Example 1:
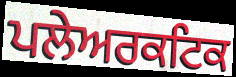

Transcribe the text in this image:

ਪਲੇਅਰਕਟਿਕ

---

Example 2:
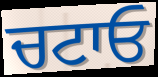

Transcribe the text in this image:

ਚਟਾਓ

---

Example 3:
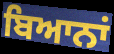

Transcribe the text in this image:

ਬਿਆਨਾਂ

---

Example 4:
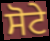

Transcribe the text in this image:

ਸੋਟੇ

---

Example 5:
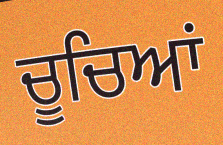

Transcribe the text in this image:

ਚੂਚਿਆਂ